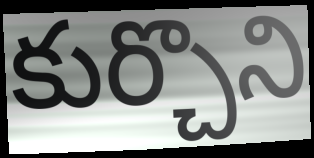
కుర్చొని